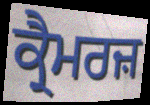
ਕ੍ਰੈਮਰਜ਼